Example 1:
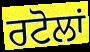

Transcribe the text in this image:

ਰਟੋਲਾਂ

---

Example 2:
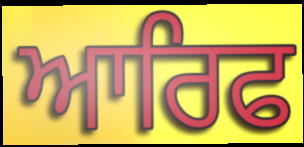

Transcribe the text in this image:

ਆਰਿਫ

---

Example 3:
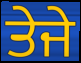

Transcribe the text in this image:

ਤੇਜੇ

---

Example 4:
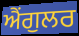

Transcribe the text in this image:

ਐਂਗੁਲਰ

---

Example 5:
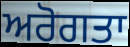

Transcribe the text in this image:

ਅਰੋਗਤਾ